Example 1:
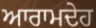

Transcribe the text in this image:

ਆਰਾਮਦੇਹ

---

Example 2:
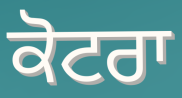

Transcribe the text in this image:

ਕੋਟਰਾ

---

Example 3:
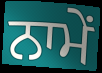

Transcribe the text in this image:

ਨਾਮੇਂ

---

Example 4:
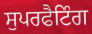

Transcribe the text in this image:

ਸੁਪਰਫੈਟਿੰਗ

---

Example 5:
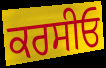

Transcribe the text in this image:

ਕਰਸੀਓ